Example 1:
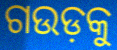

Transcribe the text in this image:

ଗଉଡ଼କୁ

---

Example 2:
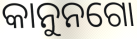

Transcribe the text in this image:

କାନୁନଗୋ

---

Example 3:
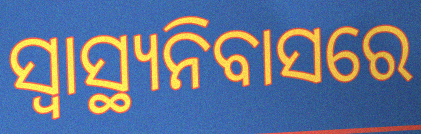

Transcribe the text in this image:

ସ୍ଵାସ୍ଥ୍ୟନିବାସରେ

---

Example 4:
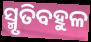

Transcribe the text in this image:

ସ୍ମୃତିବହୁଳ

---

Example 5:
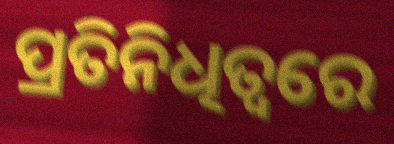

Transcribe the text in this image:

ପ୍ରତିନିଧିତ୍ବରେ